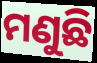
ମଣୁଛି